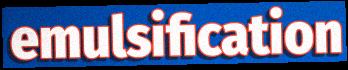
emulsification